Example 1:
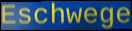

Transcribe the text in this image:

Eschwege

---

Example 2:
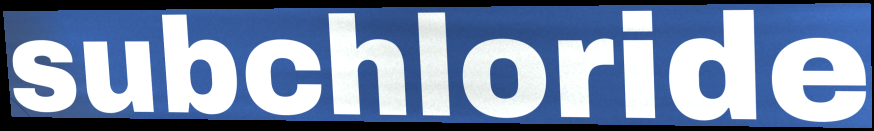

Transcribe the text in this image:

subchloride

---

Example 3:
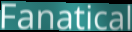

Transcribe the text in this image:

Fanatical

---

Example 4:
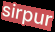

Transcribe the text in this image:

sirpur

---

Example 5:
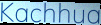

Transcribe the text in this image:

Kachhua